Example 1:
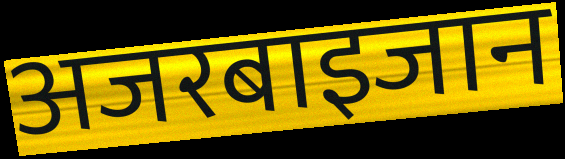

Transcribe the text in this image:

अजरबाइजान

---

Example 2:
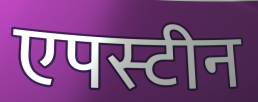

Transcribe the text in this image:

एपस्टीन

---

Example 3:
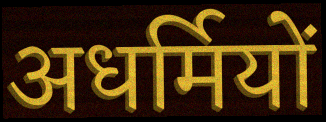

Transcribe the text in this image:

अधर्मियों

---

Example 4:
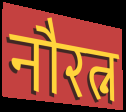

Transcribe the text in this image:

नौरत्न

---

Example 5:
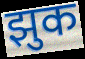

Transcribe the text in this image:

झुक